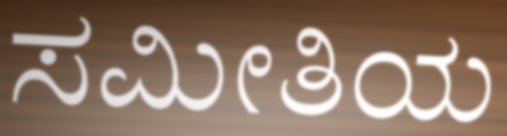
ಸಮೀತಿಯ